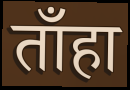
ताँहा